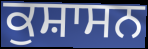
ਕੁਸ਼ਾਸਨ